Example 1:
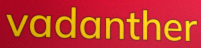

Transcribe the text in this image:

vadanther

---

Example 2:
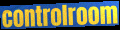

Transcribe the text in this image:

controlroom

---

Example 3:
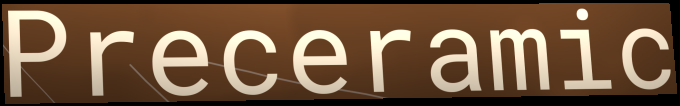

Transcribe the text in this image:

Preceramic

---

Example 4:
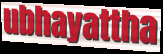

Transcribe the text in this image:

ubhayattha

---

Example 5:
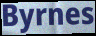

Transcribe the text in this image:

Byrnes